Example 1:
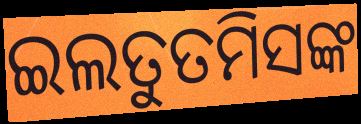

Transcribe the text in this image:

ଇଲତୁତମିସଙ୍କ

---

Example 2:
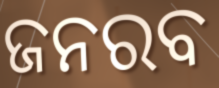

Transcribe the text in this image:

ଜନରବ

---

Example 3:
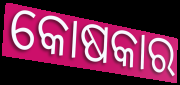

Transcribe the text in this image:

କୋଷକାର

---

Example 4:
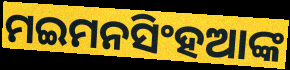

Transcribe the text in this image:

ମଇମନସିଂହଆଙ୍କ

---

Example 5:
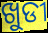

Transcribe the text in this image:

ଖୁଡୀ